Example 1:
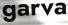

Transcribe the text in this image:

garva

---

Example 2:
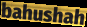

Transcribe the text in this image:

bahushah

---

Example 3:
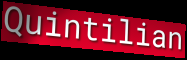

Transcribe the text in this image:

Quintilian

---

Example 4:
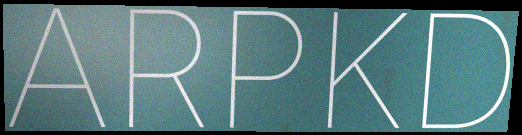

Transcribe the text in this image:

ARPKD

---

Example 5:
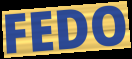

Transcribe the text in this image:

FEDO